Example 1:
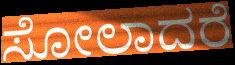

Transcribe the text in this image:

ಸೋಲಾದರೆ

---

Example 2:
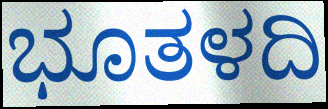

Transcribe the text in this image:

ಭೂತಳದಿ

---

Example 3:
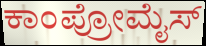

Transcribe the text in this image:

ಕಾಂಪ್ರೋಮೈಸ್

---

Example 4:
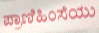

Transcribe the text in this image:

ಪ್ರಾಣಿಹಿಂಸೆಯು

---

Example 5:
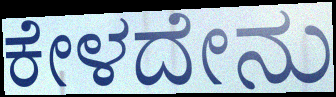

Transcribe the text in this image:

ಕೇಳದೇನು